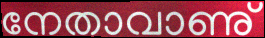
നേതാവാണു്